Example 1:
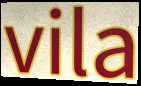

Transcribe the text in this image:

vila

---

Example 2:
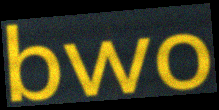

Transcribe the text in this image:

bwo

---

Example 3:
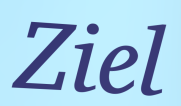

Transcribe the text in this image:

Ziel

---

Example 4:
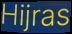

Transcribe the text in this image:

Hijras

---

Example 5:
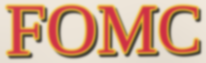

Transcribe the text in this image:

FOMC